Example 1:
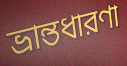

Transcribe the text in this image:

ভ্রান্তধারণা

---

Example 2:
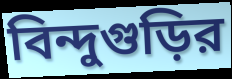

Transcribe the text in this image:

বিন্দুগুড়ির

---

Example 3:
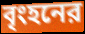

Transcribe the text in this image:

বৃংহনের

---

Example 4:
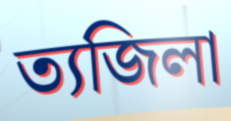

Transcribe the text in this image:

ত্যজিলা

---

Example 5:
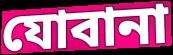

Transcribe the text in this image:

যোবানা